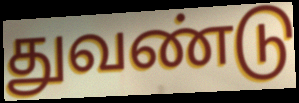
துவண்டு